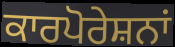
ਕਾਰਪੋਰੇਸ਼ਨਾਂ